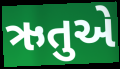
ઋતુએ